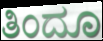
ತಿಂದೂ